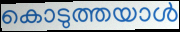
കൊടുത്തയാൾ